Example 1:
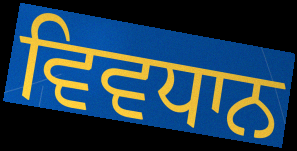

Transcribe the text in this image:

ਵਿਵਧਾਨ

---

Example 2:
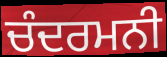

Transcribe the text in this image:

ਚੰਦਰਮਨੀ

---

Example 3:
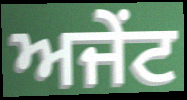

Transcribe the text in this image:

ਅਜੇਂਟ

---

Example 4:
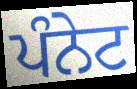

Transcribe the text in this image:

ਪੰਨੇਟ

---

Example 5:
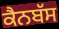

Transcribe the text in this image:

ਕੈਨਬੱਸ